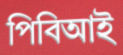
পিবিআই